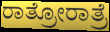
ರಾತ್ರೋರಾತ್ರೆ